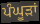
ਪੰਘੂੜਾਂ